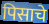
पिसाचे